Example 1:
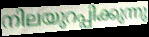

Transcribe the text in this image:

നിലയുറപ്പിക്കുന്നു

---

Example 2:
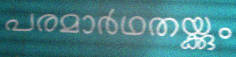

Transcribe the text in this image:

പരമാർഥതയ്ക്കും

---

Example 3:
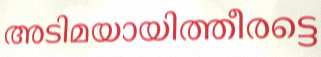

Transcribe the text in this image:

അടിമയായിത്തീരട്ടെ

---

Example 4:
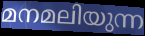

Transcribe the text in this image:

മനമലിയുന്ന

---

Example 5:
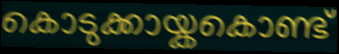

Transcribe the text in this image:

കൊടുക്കായ്കകൊണ്ട്